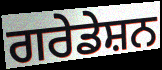
ਗਰੇਡੇਸ਼ਨ